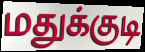
மதுக்குடி